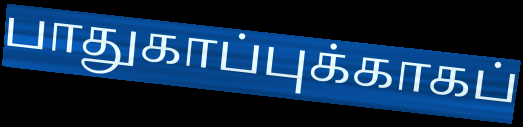
பாதுகாப்புக்காகப்